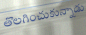
తొలగించుకున్నాడు